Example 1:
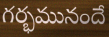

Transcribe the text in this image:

గర్భమునందే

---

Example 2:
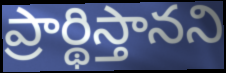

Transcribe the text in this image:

ప్రార్థిస్తానని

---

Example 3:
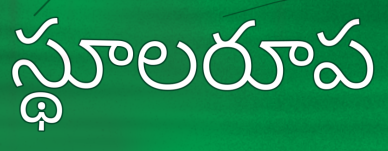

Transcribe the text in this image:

స్థూలరూప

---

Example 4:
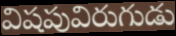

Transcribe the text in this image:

విషపువిరుగుడు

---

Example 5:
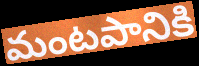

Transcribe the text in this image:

మంటపానికి